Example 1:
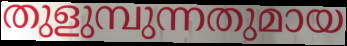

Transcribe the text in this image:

തുളുമ്പുന്നതുമായ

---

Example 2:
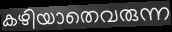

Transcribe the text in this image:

കഴിയാതെവരുന്ന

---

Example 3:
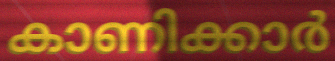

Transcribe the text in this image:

കാണിക്കാർ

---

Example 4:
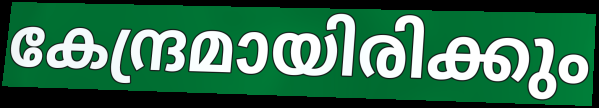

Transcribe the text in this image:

കേന്ദ്രമായിരിക്കും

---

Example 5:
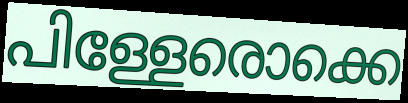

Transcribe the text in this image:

പിള്ളേരൊക്കെ